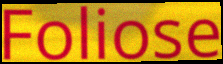
Foliose